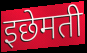
इछेमती